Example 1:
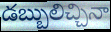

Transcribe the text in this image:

డబ్బులిచ్చినా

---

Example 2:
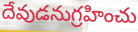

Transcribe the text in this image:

దేవుడనుగ్రహించు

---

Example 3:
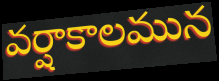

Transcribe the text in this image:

వర్షాకాలమున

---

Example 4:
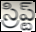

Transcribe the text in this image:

స్రిప్ట్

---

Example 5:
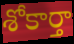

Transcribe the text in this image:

శోకార్తా